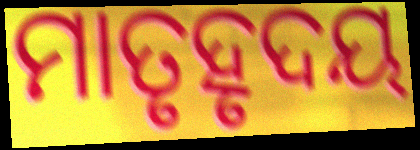
ମାତୃହୃଦୟ